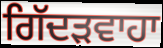
ਗਿੱਦੜਵਾਹਾ